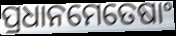
ପ୍ରଧାନମେତେଷାଂ